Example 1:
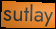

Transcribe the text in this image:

sutlay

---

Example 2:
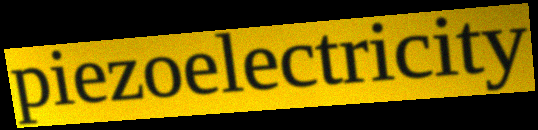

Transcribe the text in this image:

piezoelectricity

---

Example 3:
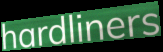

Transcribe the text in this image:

hardliners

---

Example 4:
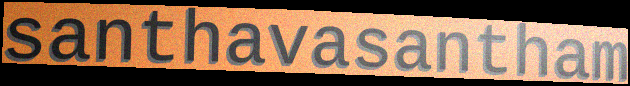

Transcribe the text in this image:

santhavasantham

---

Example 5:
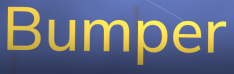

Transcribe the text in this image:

Bumper